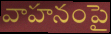
వాహనంపై